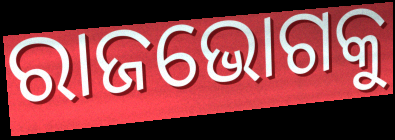
ରାଜଭୋଗକୁ